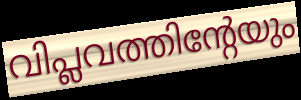
വിപ്ലവത്തിന്റേയും